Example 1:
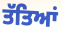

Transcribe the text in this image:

ਤੱਤਿਆਂ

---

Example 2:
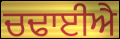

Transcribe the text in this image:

ਚਢਾਈਐ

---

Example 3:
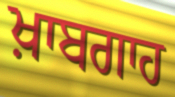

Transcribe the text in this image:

ਖ਼ਾਬਗਾਹ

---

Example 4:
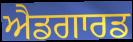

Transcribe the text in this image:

ਐਡਗਾਰਡ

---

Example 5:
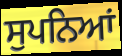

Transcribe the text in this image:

ਸੁਪਨਿਆਂ